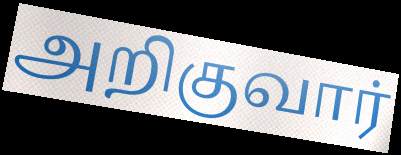
அறிகுவார்